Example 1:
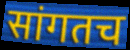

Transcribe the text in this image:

सांगतच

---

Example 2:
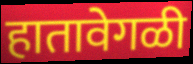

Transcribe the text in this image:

हातावेगळी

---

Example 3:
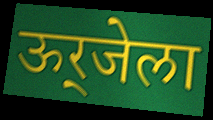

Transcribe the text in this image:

ऊर्जेला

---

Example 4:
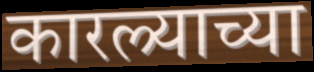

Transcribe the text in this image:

कारल्याच्या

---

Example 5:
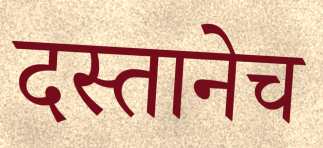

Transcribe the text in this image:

दस्तानेच